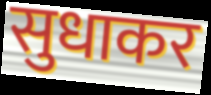
सुधाकर